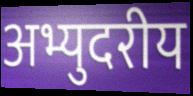
अभ्युदरीय